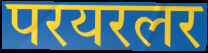
परयरलर